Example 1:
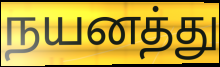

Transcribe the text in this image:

நயனத்து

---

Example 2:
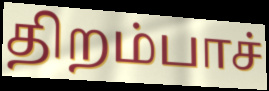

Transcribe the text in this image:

திறம்பாச்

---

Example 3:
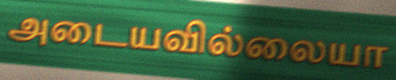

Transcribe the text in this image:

அடையவில்லையா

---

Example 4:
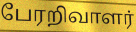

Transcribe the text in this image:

பேரறிவாளர்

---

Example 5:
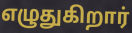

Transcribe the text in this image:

எழுதுகிறார்